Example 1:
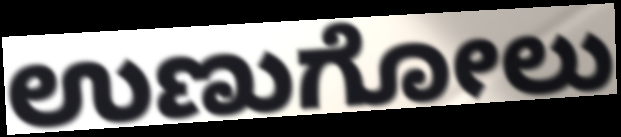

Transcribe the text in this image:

ಉಣುಗೋಲು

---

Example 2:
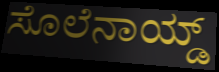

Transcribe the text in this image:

ಸೊಲೆನಾಯ್ಡ್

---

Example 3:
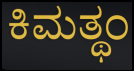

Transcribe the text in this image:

ಕಿಮತ್ಥಂ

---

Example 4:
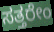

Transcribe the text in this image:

ಸತ್ತರೇಂ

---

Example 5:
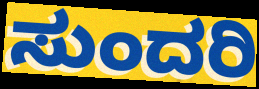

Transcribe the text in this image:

ಸುಂದರಿ